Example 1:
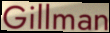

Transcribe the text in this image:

Gillman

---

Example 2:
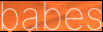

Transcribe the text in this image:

babes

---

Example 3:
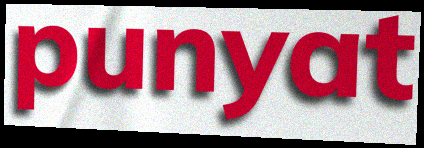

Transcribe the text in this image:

punyat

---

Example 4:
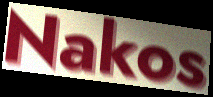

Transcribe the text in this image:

Nakos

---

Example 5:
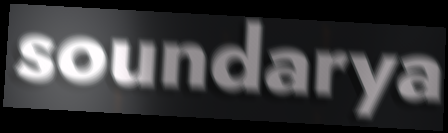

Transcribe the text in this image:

soundarya